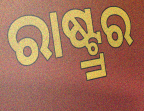
ରାଷ୍ଟ୍ର୍ରର